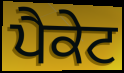
ਪੈਕੇਟ